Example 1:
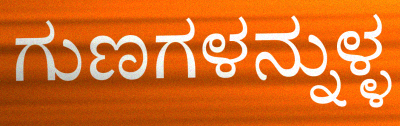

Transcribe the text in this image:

ಗುಣಗಳನ್ನುಳ್ಳ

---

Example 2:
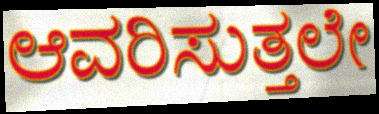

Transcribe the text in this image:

ಆವರಿಸುತ್ತಲೇ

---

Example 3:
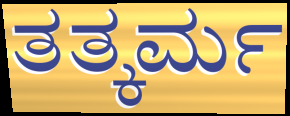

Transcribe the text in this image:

ತತ್ಕರ್ಮ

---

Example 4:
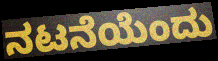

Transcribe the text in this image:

ನಟನೆಯೆಂದು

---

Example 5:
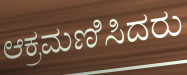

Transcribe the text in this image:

ಆಕ್ರಮಣಿಸಿದರು